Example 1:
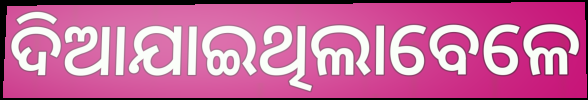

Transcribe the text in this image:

ଦିଆଯାଇଥିଲାବେଳେ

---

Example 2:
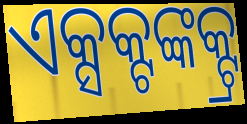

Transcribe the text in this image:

ଏକ୍ସକ୍ଟଙ୍କକ୍ଟ୍ର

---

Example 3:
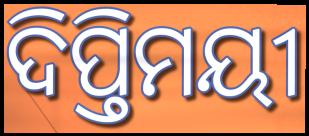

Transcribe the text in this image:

ଦିପ୍ତିମୟୀ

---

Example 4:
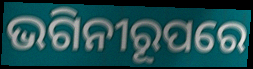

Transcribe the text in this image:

ଭଗିନୀରୂପରେ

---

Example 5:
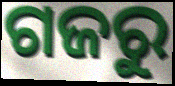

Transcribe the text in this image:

ଗଜରୁ